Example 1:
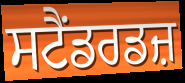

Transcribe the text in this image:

ਸਟੈਂਡਰਡਜ਼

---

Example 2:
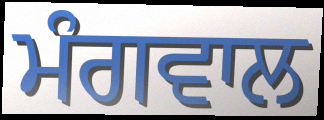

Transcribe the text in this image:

ਮੰਗਵਾਲ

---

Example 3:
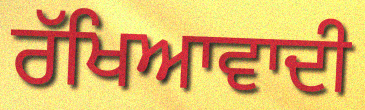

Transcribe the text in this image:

ਰੱਖਿਆਵਾਦੀ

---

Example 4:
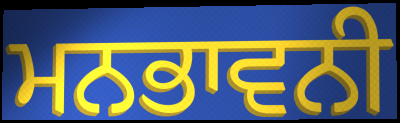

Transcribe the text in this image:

ਮਨਭਾਵਨੀ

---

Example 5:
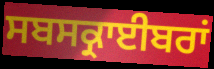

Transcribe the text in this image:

ਸਬਸਕ੍ਰਾਈਬਰਾਂ